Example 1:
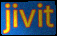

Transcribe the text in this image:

jivit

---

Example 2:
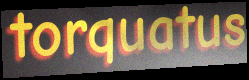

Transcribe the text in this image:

torquatus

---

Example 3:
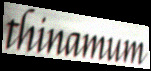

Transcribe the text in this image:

thinamum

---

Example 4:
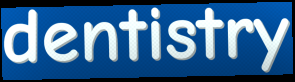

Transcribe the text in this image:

dentistry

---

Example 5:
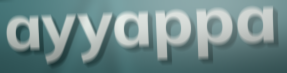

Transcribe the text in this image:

ayyappa